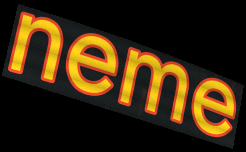
neme